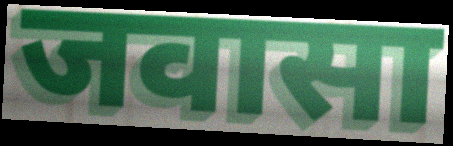
जवासा